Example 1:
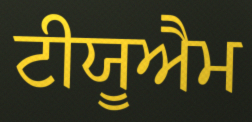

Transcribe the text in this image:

ਟੀਯੂਐਮ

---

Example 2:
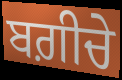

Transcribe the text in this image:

ਬਗ਼ੀਚੇ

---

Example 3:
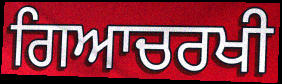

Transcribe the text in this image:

ਗਿਆਚਰਖੀ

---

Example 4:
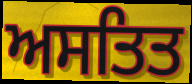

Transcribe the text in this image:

ਅਸਤਿਤ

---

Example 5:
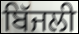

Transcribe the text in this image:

ਬਿੱਜਲੀ